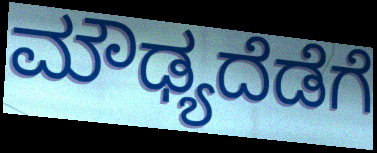
ಮೌಢ್ಯದೆಡೆಗೆ